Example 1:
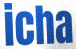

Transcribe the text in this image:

icha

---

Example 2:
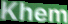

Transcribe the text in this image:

Khem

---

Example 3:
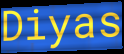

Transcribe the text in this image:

Diyas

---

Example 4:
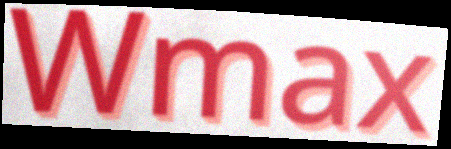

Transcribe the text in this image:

Wmax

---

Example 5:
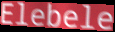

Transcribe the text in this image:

Elebele